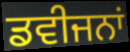
ਡਵੀਜਨਾਂ